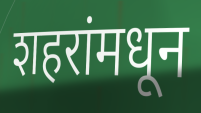
शहरांमधून